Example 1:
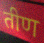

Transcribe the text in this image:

तीण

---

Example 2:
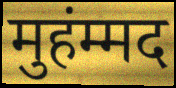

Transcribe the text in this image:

मुहंम्मद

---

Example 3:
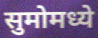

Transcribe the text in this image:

सुमोमध्ये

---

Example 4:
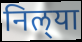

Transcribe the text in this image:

निल्या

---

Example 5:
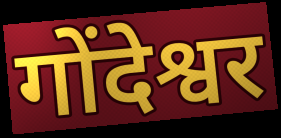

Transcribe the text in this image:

गोंदेश्वर